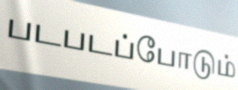
படபடப்போடும்